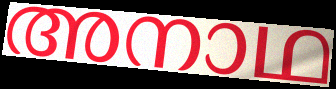
അനാഥ